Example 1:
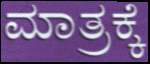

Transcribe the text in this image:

ಮಾತ್ರಕ್ಕೆ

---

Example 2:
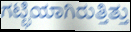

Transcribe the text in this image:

ಗಟ್ಟಿಯಾಗಿರುತ್ತಿತ್ತು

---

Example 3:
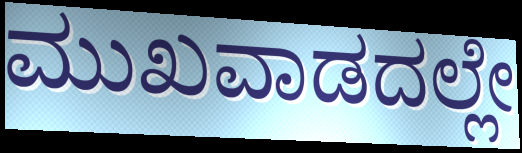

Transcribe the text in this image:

ಮುಖವಾಡದಲ್ಲೇ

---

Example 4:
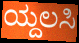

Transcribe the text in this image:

ಯ್ದಲಸಿ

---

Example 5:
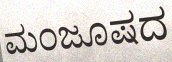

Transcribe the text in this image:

ಮಂಜೂಷದ